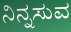
ನಿನ್ನಸುವ